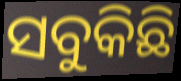
ସବୁକିଛି